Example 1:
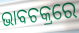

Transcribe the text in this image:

ଭାବଚକ୍ରରେ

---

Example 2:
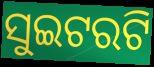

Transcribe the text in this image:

ସୁଇଟରଟି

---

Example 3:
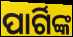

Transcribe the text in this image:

ପାର୍ଗିଙ୍କ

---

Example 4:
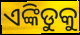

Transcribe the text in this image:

ଏଙ୍କିଡୁକୁ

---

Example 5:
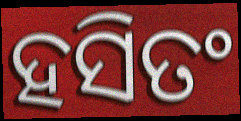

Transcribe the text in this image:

ହସିତଂ